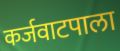
कर्जवाटपाला